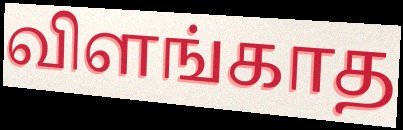
விளங்காத